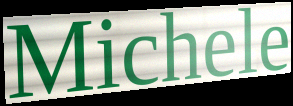
Michele